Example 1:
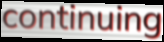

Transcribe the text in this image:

continuing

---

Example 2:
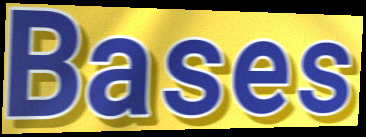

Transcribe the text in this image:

Bases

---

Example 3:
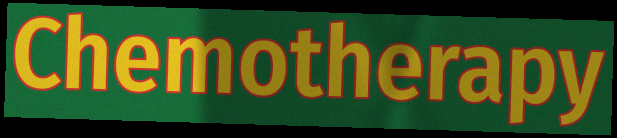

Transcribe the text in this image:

Chemotherapy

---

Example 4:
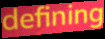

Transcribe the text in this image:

defining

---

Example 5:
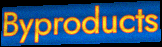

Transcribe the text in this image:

Byproducts